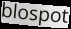
blospot